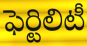
ఫెర్టిలిటీ